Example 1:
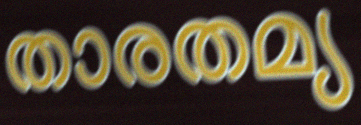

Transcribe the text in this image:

താരതമ്യ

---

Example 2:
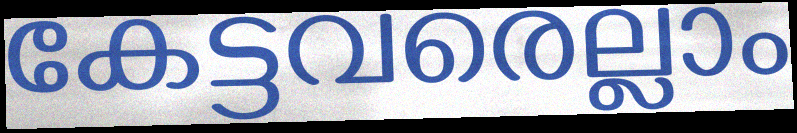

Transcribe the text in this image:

കേട്ടവരെല്ലാം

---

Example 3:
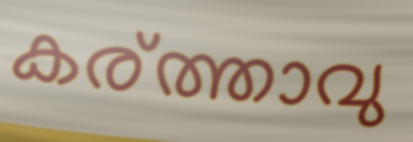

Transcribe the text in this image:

കര്ത്താവു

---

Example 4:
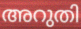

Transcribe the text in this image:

അറുതി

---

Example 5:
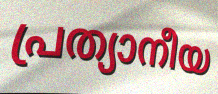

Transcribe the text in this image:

പ്രത്യാനീയ